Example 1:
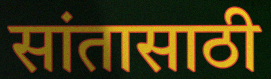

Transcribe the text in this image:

सांतासाठी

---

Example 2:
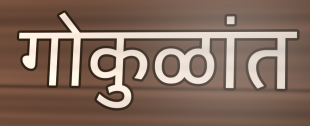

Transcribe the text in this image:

गोकुळांत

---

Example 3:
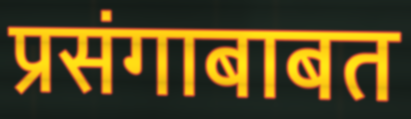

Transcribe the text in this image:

प्रसंगाबाबत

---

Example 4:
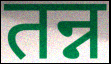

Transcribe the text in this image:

तन्न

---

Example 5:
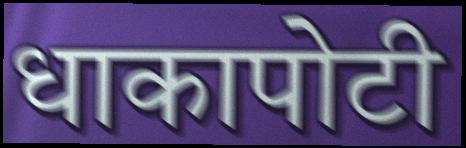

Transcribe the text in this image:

धाकापोटी